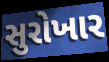
સુરોખાર